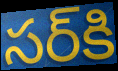
సర్‌కి